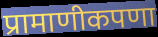
प्रामाणीकपणा